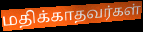
மதிக்காதவர்கள்